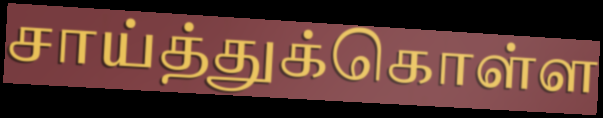
சாய்த்துக்கொள்ள